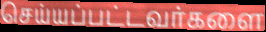
செய்யப்பட்டவர்களை